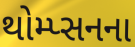
થોમ્પ્સનના